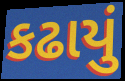
કઢાયું